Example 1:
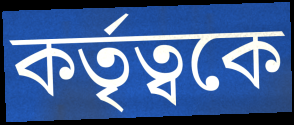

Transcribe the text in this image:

কর্তৃত্বকে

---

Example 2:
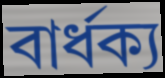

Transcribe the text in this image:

বার্ধক্য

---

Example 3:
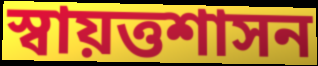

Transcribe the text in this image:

স্বায়ত্তশাসন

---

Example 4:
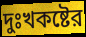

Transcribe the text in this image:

দুঃখকষ্টের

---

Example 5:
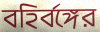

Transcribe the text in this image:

বহির্বঙ্গের